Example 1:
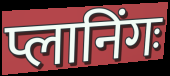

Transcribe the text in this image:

प्लानिंगः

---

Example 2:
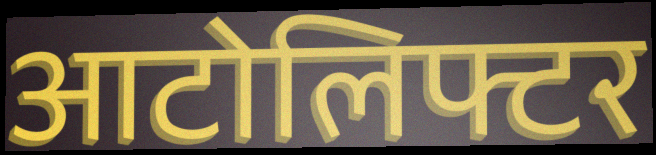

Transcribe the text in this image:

आटोलिफ्टर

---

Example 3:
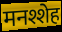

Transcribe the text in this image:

मनश्शेह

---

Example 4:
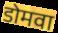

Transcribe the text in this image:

डोमवा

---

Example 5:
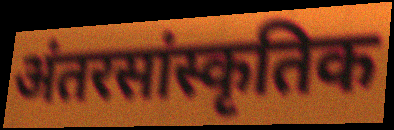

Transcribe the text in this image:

अंतरसांस्कृतिक